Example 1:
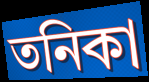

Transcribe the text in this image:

তনিকা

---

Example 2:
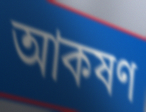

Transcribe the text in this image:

আকষণ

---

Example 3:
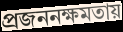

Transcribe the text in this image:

প্রজননক্ষমতায়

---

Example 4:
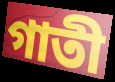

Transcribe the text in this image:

গাতী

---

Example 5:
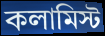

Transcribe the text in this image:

কলামিস্ট